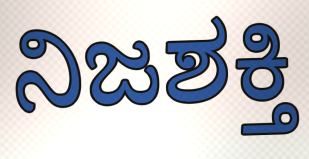
ನಿಜಶಕ್ತಿ